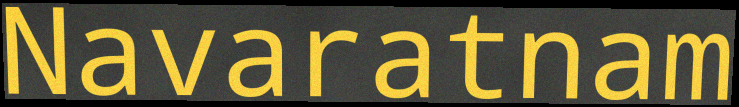
Navaratnam